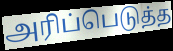
அரிப்பெடுத்த